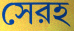
সেরহ